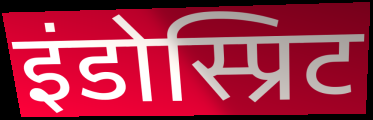
इंडोस्प्रिट